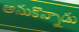
అనుకొన్నాడు